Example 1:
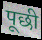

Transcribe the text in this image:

पूछी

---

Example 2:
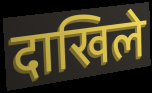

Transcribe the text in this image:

दाखिले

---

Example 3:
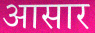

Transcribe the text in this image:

आसार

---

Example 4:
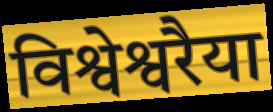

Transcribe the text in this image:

विश्वेश्वरैया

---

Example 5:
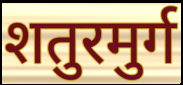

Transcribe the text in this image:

शतुरमुर्ग